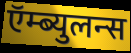
ऍम्ब्युलन्स